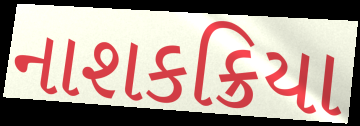
નાશકક્રિયા